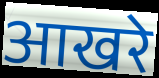
आखरे